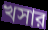
খসার